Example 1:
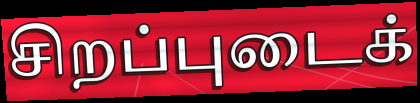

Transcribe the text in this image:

சிறப்புடைக்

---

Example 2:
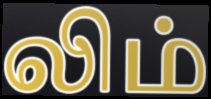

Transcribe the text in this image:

லிம்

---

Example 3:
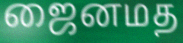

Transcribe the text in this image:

ஜைனமத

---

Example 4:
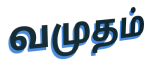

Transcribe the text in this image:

வமுதம்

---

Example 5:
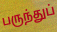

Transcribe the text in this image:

பருந்துப்